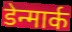
डेन्मार्क